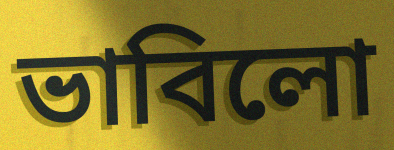
ভাবিলো